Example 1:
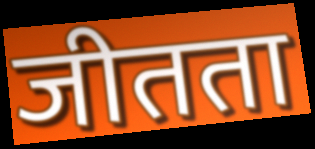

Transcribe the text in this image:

जीतता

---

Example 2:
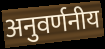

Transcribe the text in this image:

अनुवर्णनीय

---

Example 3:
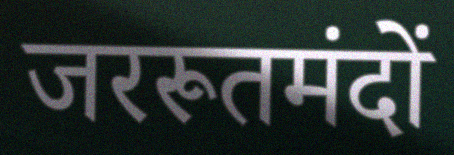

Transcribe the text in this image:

जररूतमंदों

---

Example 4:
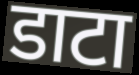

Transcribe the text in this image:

डाटा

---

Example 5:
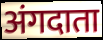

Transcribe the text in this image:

अंगदाता